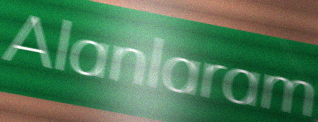
Alanlaram